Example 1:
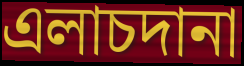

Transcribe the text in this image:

এলাচদানা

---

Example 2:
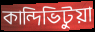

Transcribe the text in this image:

কান্দিভিটুয়া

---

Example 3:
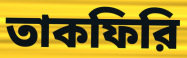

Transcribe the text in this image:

তাকফিরি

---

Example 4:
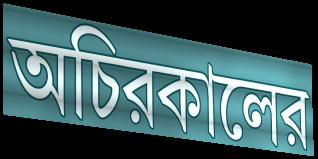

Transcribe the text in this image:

অচিরকালের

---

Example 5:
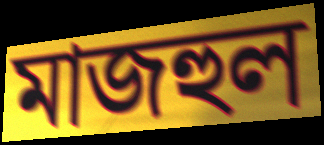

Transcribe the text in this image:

মাজহুল